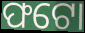
ଫଟୋ